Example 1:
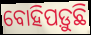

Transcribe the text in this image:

ବୋହିପଡ଼ୁଛି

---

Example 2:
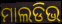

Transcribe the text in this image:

ମାଲଡିଭ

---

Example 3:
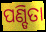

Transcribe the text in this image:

ପଣ୍ଡିତା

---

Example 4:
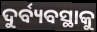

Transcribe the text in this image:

ଦୁର୍ବ୍ୟବସ୍ଥାକୁ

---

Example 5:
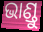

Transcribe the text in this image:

ଭାଣ୍ଡୁ